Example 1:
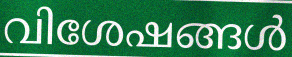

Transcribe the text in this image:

വിശേഷങ്ങൾ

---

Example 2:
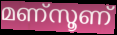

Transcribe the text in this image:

മണ്സൂണ്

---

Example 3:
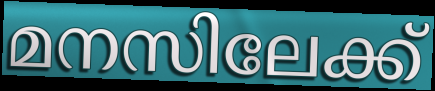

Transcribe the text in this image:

മനസിലേക്ക്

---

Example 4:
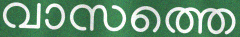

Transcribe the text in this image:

വാസത്തെ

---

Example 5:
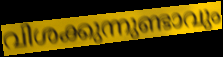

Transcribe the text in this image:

വിശക്കുന്നുണ്ടാവും